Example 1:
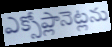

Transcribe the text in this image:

ఎక్సోప్లానెట్లను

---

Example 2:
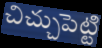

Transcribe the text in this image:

చిచ్చుపెట్టి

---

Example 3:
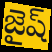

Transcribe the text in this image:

జైష్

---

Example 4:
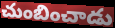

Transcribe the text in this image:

చుంబించాడు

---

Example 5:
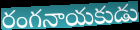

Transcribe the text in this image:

రంగనాయకుడు